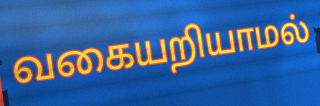
வகையறியாமல்